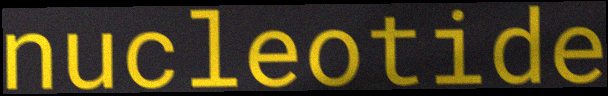
nucleotide